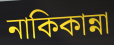
নাকিকান্না